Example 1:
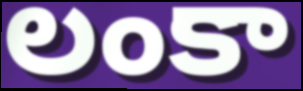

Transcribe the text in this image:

లంకా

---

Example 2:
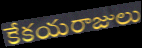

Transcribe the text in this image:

కేకయరాజులు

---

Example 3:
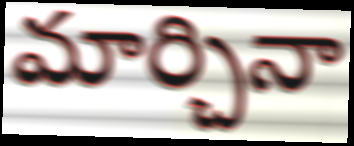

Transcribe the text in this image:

మార్చినా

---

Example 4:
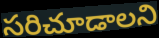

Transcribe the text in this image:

సరిచూడాలని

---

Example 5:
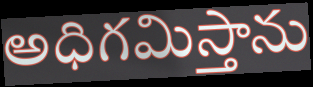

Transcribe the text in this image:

అధిగమిస్తాను